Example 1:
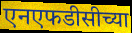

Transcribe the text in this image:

एनएफडीसीच्या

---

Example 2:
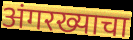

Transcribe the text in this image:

अंगरख्याचा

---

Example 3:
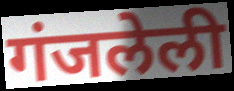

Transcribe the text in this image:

गंजलेली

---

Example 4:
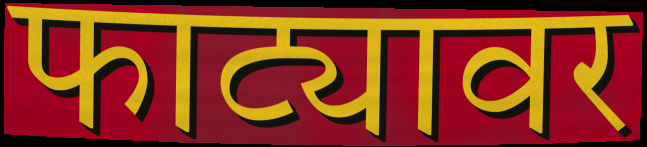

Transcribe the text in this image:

फाट्यावर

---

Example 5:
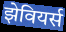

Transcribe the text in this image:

झेवियर्स